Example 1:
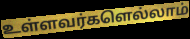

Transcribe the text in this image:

உள்ளவர்களெல்லாம்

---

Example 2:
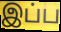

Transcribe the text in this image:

இப்ப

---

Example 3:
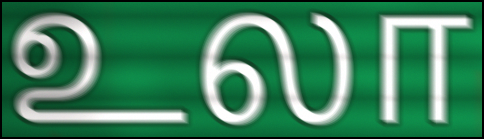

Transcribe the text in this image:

உலா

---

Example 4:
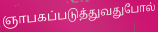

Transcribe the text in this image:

ஞாபகப்படுத்துவதுபோல்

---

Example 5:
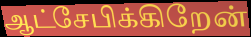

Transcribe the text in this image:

ஆட்சேபிக்கிறேன்